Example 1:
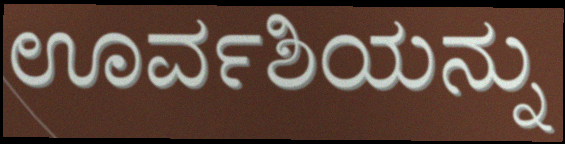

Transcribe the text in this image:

ಊರ್ವಶಿಯನ್ನು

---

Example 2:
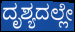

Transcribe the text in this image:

ದೃಶ್ಯದಲ್ಲೇ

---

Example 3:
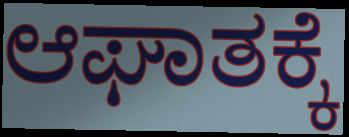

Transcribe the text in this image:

ಆಘಾತಕ್ಕೆ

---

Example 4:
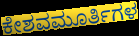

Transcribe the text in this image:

ಕೇಶವಮೂರ್ತಿಗಳ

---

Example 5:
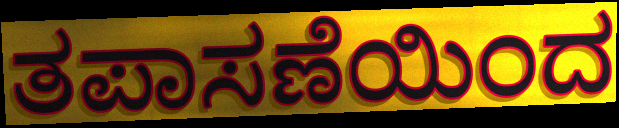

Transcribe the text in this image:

ತಪಾಸಣೆಯಿಂದ